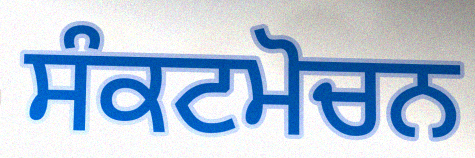
ਸੰਕਟਮੋਚਨ